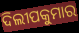
ଦିଲୀପକୁମାର